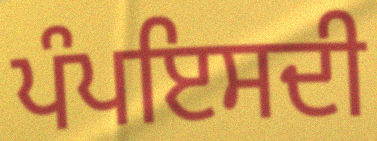
ਪੰਪਇਸਦੀ